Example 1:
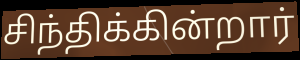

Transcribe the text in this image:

சிந்திக்கின்றார்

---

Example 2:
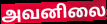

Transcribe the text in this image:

அவனிலை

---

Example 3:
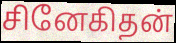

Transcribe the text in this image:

சினேகிதன்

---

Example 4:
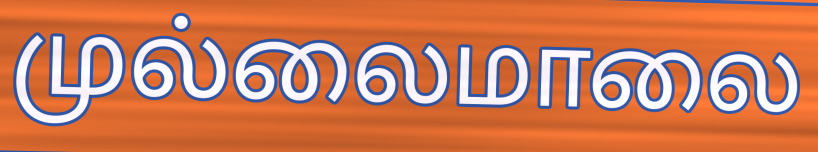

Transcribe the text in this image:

முல்லைமாலை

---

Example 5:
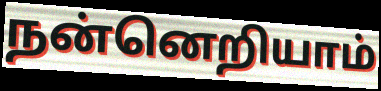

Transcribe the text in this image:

நன்னெறியாம்